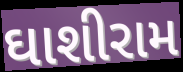
ઘાશીરામ